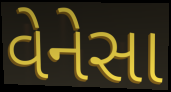
વેનેસા